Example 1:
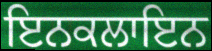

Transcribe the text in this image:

ਇਨਕਲਾਇਨ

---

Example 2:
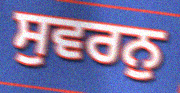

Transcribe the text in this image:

ਸੁਵਰਨੁ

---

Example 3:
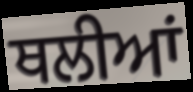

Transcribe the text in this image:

ਥਲੀਆਂ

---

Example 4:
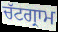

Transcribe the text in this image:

ਚੱਟਗ੍ਰਾਮ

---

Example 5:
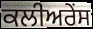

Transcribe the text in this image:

ਕਲੀਅਰੇਂਸ